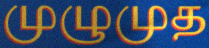
முழுமுத